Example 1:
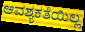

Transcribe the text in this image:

ಆವಶ್ಯಕತೆಯಿಲ್ಲ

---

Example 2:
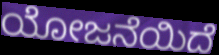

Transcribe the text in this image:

ಯೋಜನೆಯಿದೆ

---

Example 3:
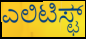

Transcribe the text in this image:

ಎಲಿಟಿಸ್ಟ್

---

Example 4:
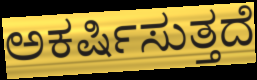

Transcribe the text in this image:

ಅಕರ್ಷಿಸುತ್ತದೆ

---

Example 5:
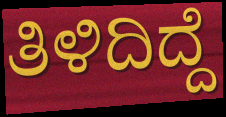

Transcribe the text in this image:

ತಿಳಿದಿದ್ದೆ